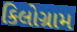
કિલોગ્રામ